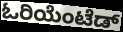
ಓರಿಯೆಂಟೆಡ್